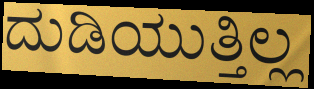
ದುಡಿಯುತ್ತಿಲ್ಲ